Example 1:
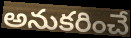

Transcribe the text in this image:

అనుకరించే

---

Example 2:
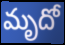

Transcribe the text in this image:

మృదో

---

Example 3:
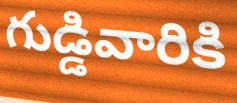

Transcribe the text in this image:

గుడ్డివారికి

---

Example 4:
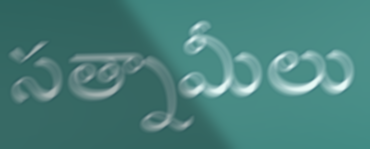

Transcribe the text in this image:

సత్నామీలు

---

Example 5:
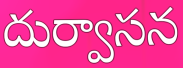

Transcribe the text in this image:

దుర్వాసన